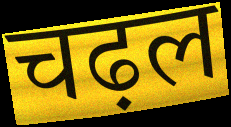
चढ़ल